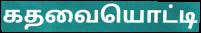
கதவையொட்டி